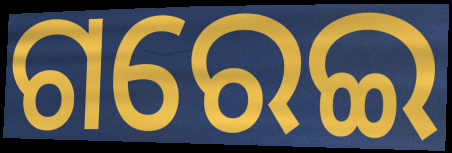
ଗରେଇ